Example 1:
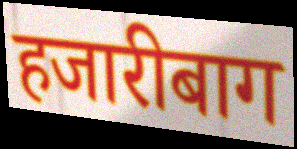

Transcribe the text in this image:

हजारीबाग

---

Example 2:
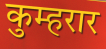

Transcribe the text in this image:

कुम्हरार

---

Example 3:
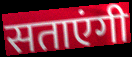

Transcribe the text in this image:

सताएंगी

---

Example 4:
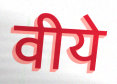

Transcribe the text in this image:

वीये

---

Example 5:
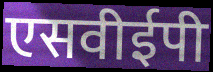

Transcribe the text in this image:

एसवीईपी